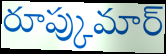
రూప్కుమార్